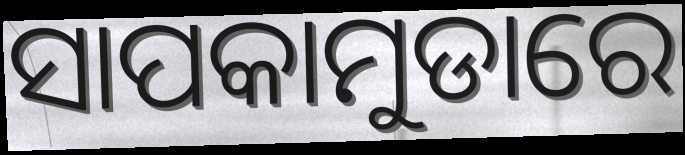
ସାପକାମୁଡାରେ